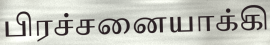
பிரச்சனையாக்கி